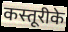
कस्तूरीके